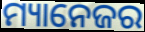
ମ୍ୟାନେଜର